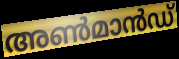
അൺമാൻഡ്